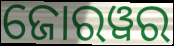
ଜୋରୱର